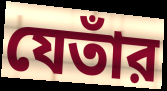
যেতাঁর